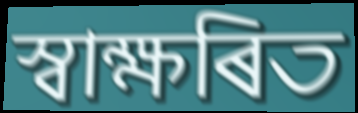
স্বাক্ষৰিত